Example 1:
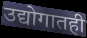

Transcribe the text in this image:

उद्योगातही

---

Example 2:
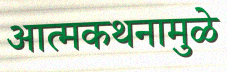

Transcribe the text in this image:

आत्मकथनामुळे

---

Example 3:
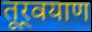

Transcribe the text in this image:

तूर्वयाण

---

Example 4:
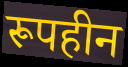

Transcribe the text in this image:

रूपहीन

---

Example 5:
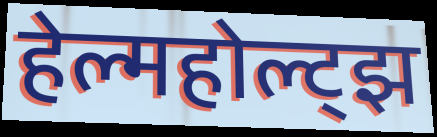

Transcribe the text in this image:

हेल्महोल्ट्झ